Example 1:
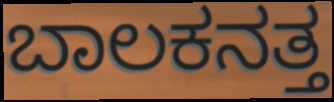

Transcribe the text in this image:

ಬಾಲಕನತ್ತ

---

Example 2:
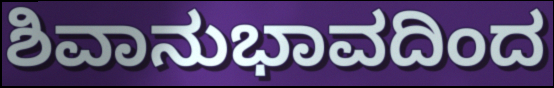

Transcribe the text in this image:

ಶಿವಾನುಭಾವದಿಂದ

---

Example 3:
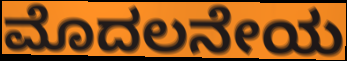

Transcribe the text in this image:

ಮೊದಲನೇಯ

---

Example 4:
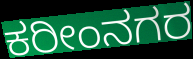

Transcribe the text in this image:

ಕರೀಂನಗರ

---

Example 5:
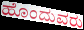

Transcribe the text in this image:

ಹೊಂದುವರು